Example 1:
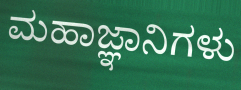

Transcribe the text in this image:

ಮಹಾಜ್ಞಾನಿಗಳು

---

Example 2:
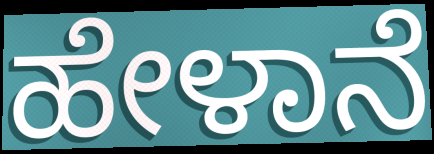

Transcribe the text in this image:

ಹೇಳಾನೆ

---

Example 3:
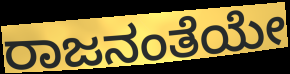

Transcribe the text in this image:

ರಾಜನಂತೆಯೇ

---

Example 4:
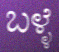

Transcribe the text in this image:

ಬಳ್ಳೆ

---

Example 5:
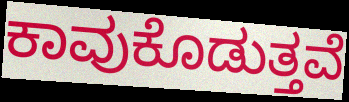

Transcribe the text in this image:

ಕಾವುಕೊಡುತ್ತವೆ